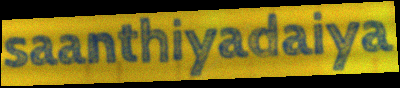
saanthiyadaiya